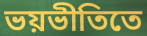
ভয়ভীতিতে